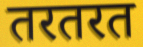
तरतरत